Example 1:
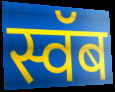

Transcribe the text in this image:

स्वॅब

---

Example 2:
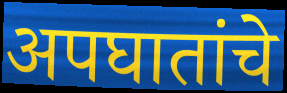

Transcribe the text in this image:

अपघातांचे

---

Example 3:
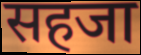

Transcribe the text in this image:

सहजा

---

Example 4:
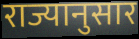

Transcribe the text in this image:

राज्यानुसार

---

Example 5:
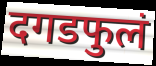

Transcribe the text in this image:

दगडफुलं